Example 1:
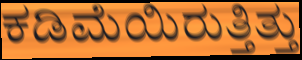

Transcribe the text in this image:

ಕಡಿಮೆಯಿರುತ್ತಿತ್ತು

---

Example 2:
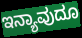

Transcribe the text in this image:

ಇನ್ಯಾವುದೂ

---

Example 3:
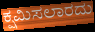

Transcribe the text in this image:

ಕ್ಷಮಿಸಲಾರದು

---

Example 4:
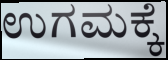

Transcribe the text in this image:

ಉಗಮಕ್ಕೆ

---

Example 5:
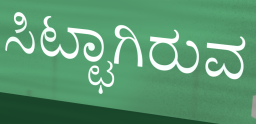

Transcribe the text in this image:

ಸಿಟ್ಟಾಗಿರುವ